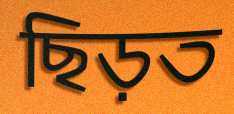
ছিড়ত